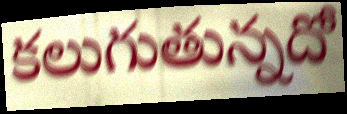
కలుగుతున్నదో